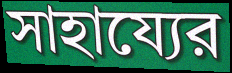
সাহায্যের